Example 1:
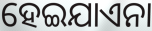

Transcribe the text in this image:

ହେଇଯାଏନା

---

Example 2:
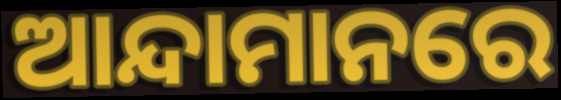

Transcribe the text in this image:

ଆନ୍ଦାମାନରେ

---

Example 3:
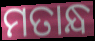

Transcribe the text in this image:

ମତାନ୍ଧ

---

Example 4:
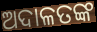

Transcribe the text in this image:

ଅଦାଳତଙ୍କ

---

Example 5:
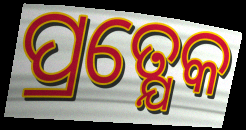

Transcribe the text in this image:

ପ୍ରତ୍ଯେକ